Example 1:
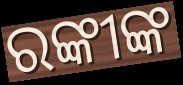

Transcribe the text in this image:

ରଙ୍କୀଙ୍କ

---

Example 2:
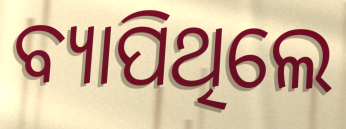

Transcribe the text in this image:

ବ୍ୟାପିଥିଲେ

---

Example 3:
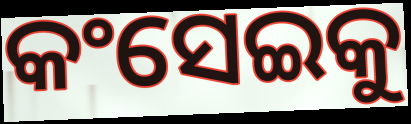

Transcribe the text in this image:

କଂସେଇକୁ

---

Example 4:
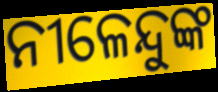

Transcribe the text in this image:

ନୀଳେନ୍ଦୁଙ୍କ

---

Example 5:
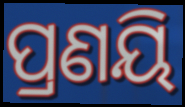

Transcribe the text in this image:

ପ୍ରଣୟି